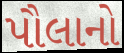
પૌલાનો